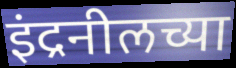
इंद्रनीलच्या